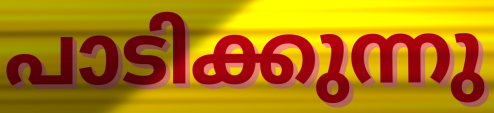
പാടിക്കുന്നു